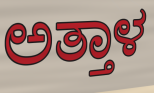
ಅತ್ತಾಳ